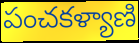
పంచకళ్యాణి